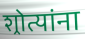
श्रोत्यांना